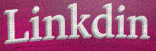
Linkdin